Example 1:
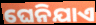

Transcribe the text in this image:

ଘେନିଯାଏ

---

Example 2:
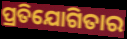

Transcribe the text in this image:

ପ୍ରତିଯୋଗିତାର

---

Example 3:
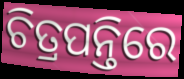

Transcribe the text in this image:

ଚିତ୍ରପନ୍ତିରେ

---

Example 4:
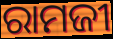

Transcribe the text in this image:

ରାମଜୀ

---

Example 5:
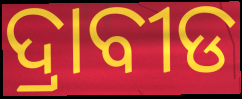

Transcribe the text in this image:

ଦ୍ରାବୀଡ